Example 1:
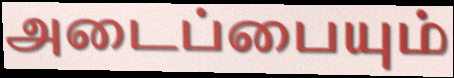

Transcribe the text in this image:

அடைப்பையும்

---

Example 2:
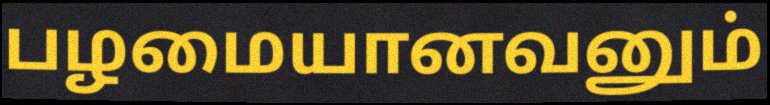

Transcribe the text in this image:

பழமையானவனும்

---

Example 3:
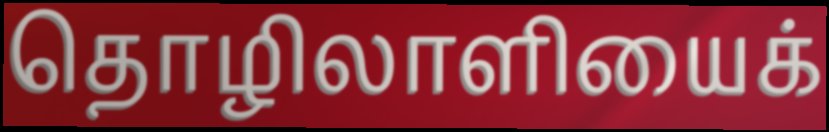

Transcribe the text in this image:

தொழிலாளியைக்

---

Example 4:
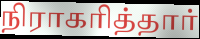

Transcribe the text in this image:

நிராகரித்தார்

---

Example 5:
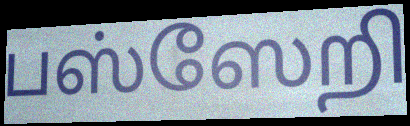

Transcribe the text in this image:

பஸ்ஸேறி